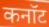
कनॉट